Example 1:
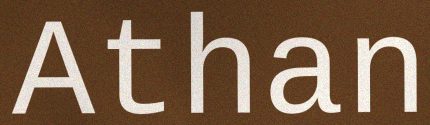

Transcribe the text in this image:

Athan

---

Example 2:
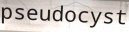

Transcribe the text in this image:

pseudocyst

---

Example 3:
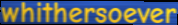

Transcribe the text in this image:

whithersoever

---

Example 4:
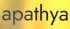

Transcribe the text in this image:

apathya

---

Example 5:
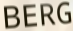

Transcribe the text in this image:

BERG